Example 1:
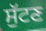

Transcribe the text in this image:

ਸੁੱਟਣ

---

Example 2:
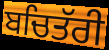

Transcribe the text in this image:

ਬਚਿਤੱਰੀ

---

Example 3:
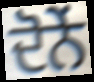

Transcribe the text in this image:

ਦੋਨੇਂ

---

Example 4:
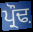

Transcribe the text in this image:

ਪ੍ਰੌਢ਼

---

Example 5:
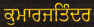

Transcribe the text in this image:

ਕੁਮਾਰਜਤਿੰਦਰ